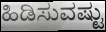
ಹಿಡಿಸುವಷ್ಟು